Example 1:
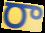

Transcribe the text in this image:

రా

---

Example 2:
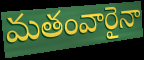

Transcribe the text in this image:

మతంవారైనా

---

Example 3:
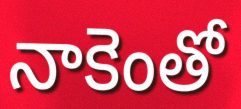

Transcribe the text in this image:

నాకెంతో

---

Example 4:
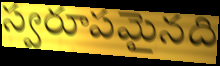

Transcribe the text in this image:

స్వరూపమైనది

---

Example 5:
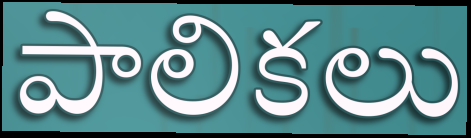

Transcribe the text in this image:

పాలికలు